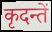
कृदन्तें